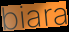
biara